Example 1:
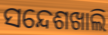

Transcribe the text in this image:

ସନ୍ଦେଶଖାଲି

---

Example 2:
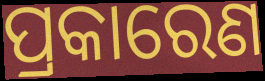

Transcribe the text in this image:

ପ୍ରକାରେଣ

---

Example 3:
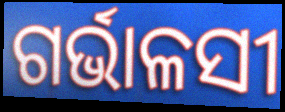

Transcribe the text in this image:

ଗର୍ଭାଳସୀ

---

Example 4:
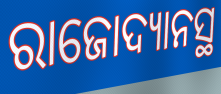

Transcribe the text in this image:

ରାଜୋଦ୍ୟାନସ୍ଥ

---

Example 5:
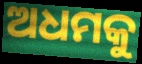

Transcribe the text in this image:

ଅଧମକୁ